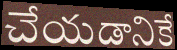
చేయడానికే